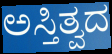
ಅಸ್ತಿತ್ವದ